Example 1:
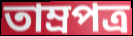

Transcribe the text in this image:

তাম্রপত্র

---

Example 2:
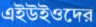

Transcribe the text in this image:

এইউইওদের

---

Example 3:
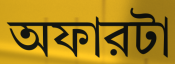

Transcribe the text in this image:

অফারটা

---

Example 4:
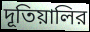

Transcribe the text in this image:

দূতিয়ালির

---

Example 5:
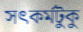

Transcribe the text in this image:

সৎকর্মটুকু